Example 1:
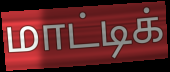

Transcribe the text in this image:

மாட்டிக்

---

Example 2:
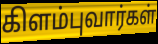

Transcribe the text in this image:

கிளம்புவார்கள்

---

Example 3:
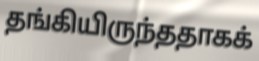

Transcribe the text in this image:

தங்கியிருந்ததாகக்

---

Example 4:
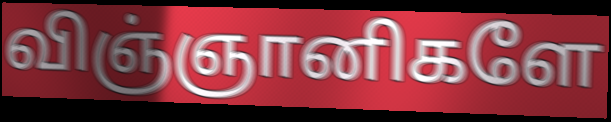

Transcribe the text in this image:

விஞ்ஞானிகளே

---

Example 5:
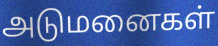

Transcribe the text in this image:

அடுமனைகள்